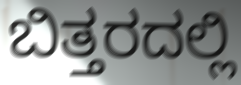
ಬಿತ್ತರದಲ್ಲಿ